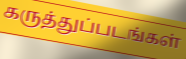
கருத்துப்படங்கள்